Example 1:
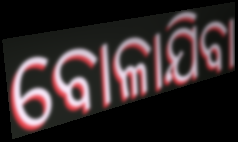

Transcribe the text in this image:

ବୋଳାଯିବା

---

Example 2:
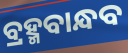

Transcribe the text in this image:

ବ୍ରହ୍ମବାନ୍ଧବ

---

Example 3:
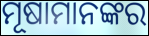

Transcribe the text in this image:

ମୂଷାମାନଙ୍କର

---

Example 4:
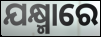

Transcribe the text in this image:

ଯକ୍ଷ୍ମାରେ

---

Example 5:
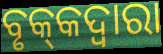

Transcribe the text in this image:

ବୃକ୍‌କଦ୍ଵାରା